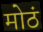
मोठं